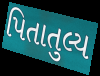
પિતાતુલ્ય